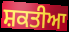
ਸ਼ਕਤੀਆ